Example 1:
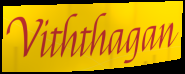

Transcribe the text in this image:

Viththagan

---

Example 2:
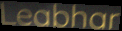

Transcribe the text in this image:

Leabhar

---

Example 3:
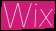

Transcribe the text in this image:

Wix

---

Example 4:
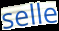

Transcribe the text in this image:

selle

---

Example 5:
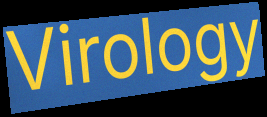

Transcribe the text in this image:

Virology